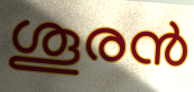
ശൂരൻ